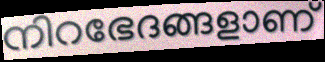
നിറഭേദങ്ങളാണ്